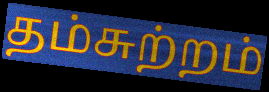
தம்சுற்றம்